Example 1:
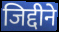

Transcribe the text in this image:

जिद्दीने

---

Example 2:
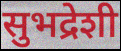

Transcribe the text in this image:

सुभद्रेशी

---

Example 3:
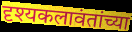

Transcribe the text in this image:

दृश्यकलावंतांच्या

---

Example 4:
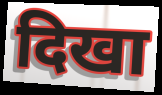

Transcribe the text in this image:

दिखा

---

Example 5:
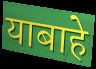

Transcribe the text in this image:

याबाहे